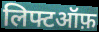
लिफ्टऑफ़